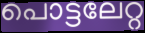
പൊട്ടലേറ്റ